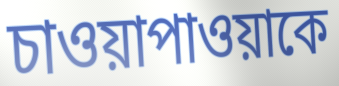
চাওয়াপাওয়াকে